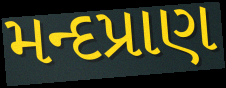
મન્દપ્રાણ